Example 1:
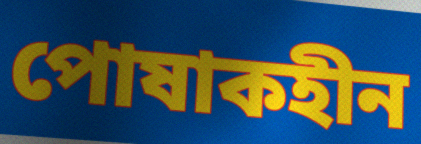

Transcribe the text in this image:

পোষাকহীন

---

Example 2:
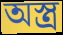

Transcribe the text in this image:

অস্ত্র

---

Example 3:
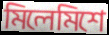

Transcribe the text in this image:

মিলেমিশে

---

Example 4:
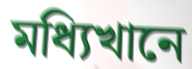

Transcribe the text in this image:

মধ্যিখানে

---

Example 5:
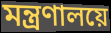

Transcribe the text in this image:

মন্ত্রণালয়ে